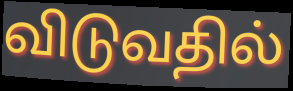
விடுவதில்